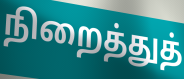
நிறைத்துத்